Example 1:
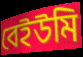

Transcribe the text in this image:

বেইউমি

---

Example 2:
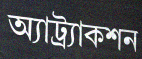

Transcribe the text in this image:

অ্যাট্র্যাকশন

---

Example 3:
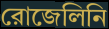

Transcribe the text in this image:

রোজেলিনি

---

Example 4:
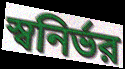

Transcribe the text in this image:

স্বনির্ভর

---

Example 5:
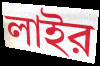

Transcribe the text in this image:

লাইর